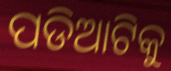
ପଡିଆଟିକୁ